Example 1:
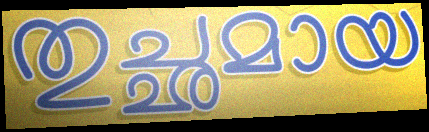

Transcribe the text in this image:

തുച്ഛമായ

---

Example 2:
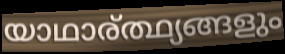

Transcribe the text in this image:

യാഥാര്ത്ഥ്യങ്ങളും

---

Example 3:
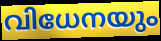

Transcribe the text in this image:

വിധേനയും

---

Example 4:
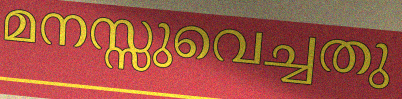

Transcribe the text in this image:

മനസ്സുവെച്ചതു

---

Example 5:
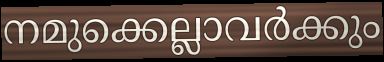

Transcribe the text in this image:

നമുക്കെല്ലാവർക്കും